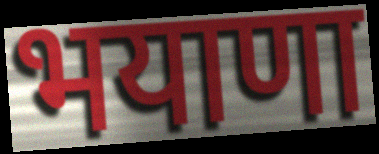
भयाणा